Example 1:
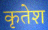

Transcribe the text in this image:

कृतेश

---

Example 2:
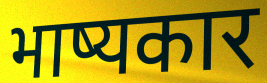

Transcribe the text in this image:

भाष्यकार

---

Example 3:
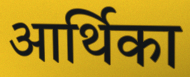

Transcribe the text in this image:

आर्थिका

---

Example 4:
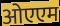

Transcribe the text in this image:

ओएएम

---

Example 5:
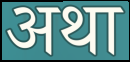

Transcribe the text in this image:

अथा